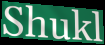
Shukl